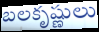
బలకృష్ణులు